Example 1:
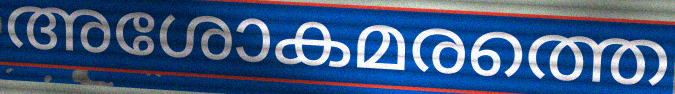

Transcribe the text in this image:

അശോകമരത്തെ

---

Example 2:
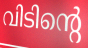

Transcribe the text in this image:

വിടിന്റെ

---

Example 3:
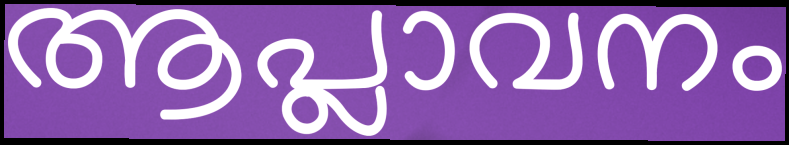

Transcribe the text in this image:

ആപ്ലാവനം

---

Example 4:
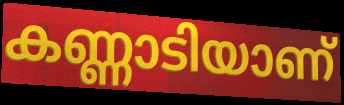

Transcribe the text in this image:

കണ്ണാടിയാണ്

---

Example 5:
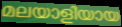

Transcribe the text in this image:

മലയാളിയായ